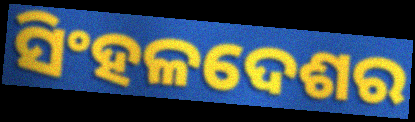
ସିଂହଳଦେଶର